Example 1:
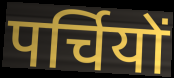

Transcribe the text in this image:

पर्चियों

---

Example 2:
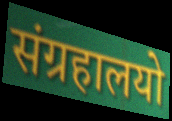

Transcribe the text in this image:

संग्रहालयो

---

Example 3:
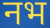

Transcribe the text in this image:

नभ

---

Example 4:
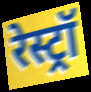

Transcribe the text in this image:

रेस्ट्रॉ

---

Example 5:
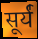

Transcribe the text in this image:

सूर्य॑